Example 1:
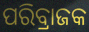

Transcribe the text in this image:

ପରିବ୍ରାଜକ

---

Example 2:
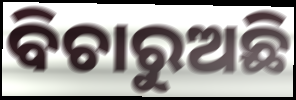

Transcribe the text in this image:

ବିଚାରୁଅଛି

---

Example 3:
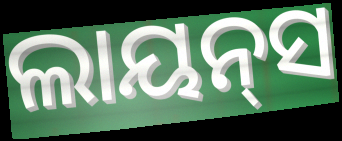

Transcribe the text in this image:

ଲାୟନ୍‌ସ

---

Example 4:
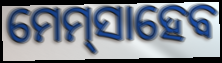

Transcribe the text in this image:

ମେମ୍‌ସାହେବ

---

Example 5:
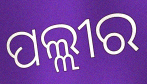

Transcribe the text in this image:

ପଲ୍ଲୀର